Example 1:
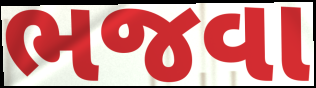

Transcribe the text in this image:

ભજવા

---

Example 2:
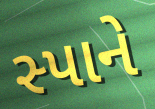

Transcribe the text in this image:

સ્પાને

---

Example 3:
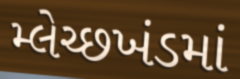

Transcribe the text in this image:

મ્લેચ્છખંડમાં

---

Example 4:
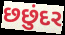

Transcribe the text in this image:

છછુંદર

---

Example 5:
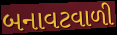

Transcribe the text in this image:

બનાવટવાળી